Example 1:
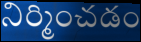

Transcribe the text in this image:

నిర్మించడం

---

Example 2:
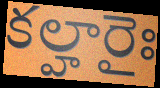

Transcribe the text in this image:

కల్హారైః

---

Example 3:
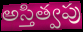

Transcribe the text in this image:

అస్తిత్వపు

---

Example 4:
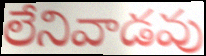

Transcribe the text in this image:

లేనివాడవు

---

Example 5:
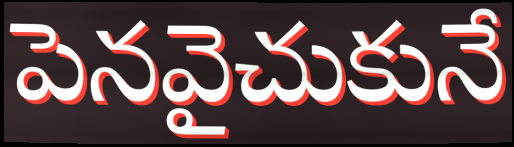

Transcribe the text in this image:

పెనవైచుకునే